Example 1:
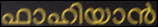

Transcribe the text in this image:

ഫാഹിയാൻ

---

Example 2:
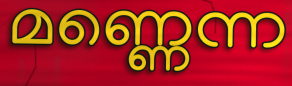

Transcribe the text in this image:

മണ്ണെന്ന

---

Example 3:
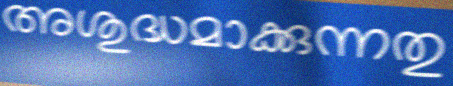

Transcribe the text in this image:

അശുദ്ധമാക്കുന്നതു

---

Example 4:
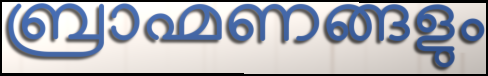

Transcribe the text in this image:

ബ്രാഹ്മണങ്ങളും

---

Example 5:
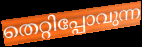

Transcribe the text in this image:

തെറ്റിപ്പോവുന്ന